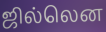
ஜில்லென